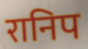
रानिप